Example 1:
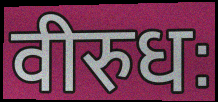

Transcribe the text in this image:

वीरुधः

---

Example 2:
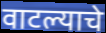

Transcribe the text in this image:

वाटल्याचे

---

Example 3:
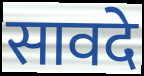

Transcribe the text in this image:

सावदे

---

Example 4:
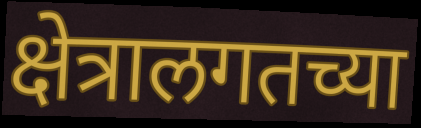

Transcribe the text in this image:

क्षेत्रालगतच्या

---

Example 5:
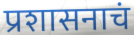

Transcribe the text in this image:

प्रशासनाचं